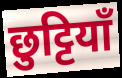
छुट्टियाँ